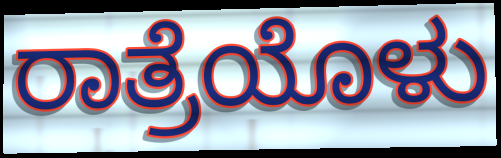
ರಾತ್ರೆಯೊಳು